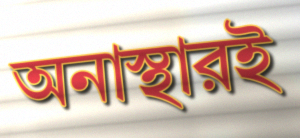
অনাস্থারই